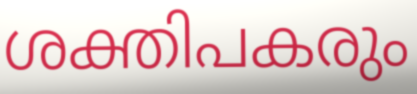
ശക്തിപകരും